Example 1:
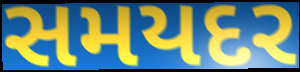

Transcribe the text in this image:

સમયદર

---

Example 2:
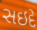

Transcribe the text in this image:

સઇદે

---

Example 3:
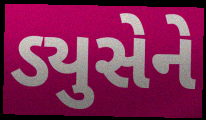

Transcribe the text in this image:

ડ્યુસેને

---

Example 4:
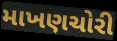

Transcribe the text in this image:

માખણચોરી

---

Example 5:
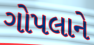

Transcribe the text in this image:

ગોપલાને